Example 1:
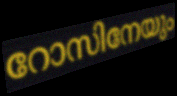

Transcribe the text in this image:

റോസിനേയും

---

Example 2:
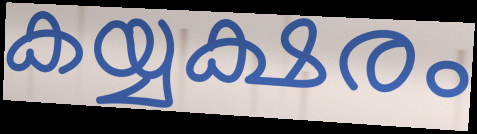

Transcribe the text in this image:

കയ്യക്ഷരം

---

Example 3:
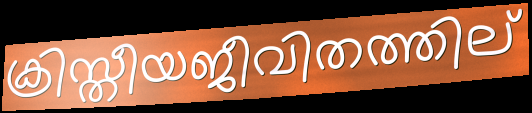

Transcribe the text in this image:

ക്രിസ്തീയജീവിതത്തില്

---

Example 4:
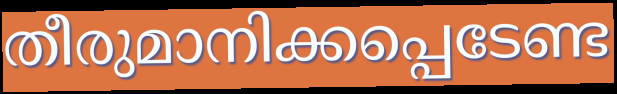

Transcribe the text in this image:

തീരുമാനിക്കപ്പെടേണ്ട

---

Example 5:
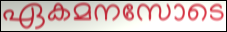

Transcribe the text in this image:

ഏകമനസോടെ